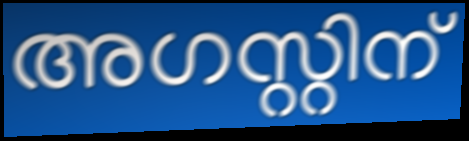
അഗസ്റ്റിന്